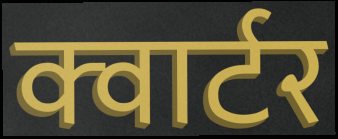
क्‍वार्टर